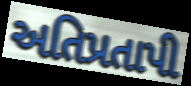
અતિપ્રતાપી